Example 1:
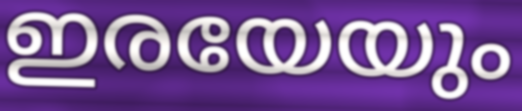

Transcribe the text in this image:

ഇരയേയും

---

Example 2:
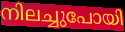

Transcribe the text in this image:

നിലച്ചുപോയി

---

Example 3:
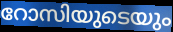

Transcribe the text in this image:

റോസിയുടെയും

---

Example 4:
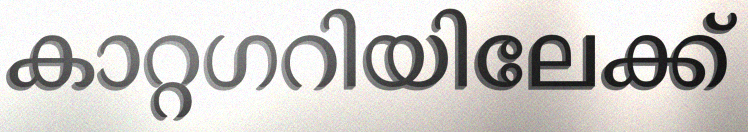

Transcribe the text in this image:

കാറ്റഗറിയിലേക്ക്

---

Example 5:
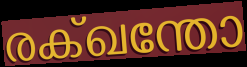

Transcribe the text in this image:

രക്ഖന്തോ